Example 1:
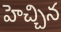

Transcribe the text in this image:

హెచ్చిన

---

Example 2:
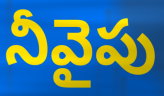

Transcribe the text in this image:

నీవైపు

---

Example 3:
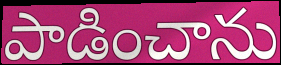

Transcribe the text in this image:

పాడించాను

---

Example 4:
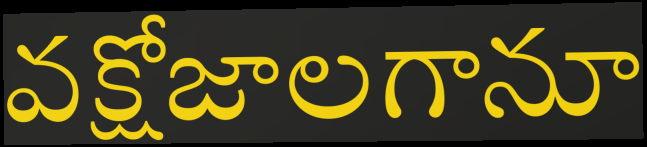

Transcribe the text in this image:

వక్షోజాలగానూ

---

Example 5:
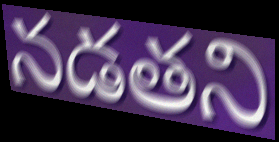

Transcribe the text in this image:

నడతని